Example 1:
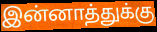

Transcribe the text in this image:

இன்னாத்துக்கு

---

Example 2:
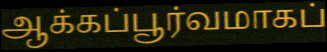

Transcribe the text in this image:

ஆக்கப்பூர்வமாகப்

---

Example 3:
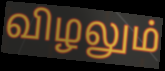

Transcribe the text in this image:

விழலும்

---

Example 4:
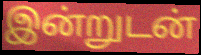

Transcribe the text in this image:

இன்றுடன்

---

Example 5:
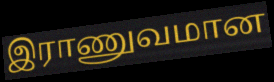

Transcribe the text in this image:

இராணுவமான